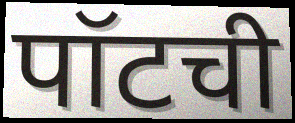
पॉटची